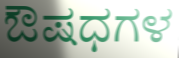
ಔಷಧಗಳ